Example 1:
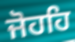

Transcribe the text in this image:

ਜੋਹਹਿ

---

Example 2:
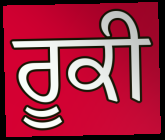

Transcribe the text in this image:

ਰੂਕੀ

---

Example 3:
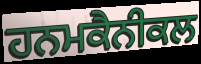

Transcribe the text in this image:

ਹਨਮਕੈਨੀਕਲ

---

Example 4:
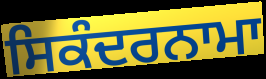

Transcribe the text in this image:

ਸਿਕੰਦਰਨਾਮਾ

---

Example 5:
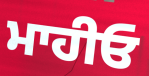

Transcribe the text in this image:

ਮਾਹੀਓ